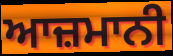
ਆਜ਼ਮਾਨੀ